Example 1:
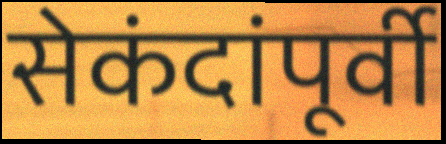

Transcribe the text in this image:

सेकंदांपूर्वी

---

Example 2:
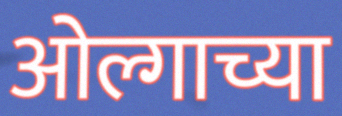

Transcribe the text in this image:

ओल्गाच्या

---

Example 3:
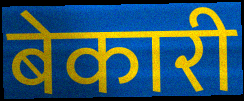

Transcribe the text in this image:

बेकारी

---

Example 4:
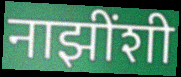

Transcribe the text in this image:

नाझींशी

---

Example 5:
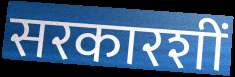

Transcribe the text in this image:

सरकारशीं